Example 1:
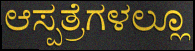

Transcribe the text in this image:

ಆಸ್ಪತ್ರೆಗಳಲ್ಲೂ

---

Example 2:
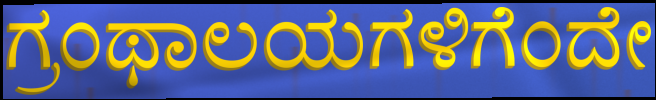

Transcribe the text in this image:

ಗ್ರಂಥಾಲಯಗಳಿಗೆಂದೇ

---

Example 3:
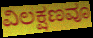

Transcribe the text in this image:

ವಿಲಕ್ಷಣವೂ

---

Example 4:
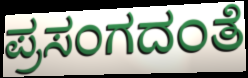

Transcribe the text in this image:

ಪ್ರಸಂಗದಂತೆ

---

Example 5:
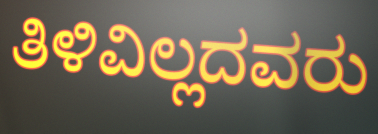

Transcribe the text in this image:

ತಿಳಿವಿಲ್ಲದವರು